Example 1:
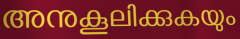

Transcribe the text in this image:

അനുകൂലിക്കുകയും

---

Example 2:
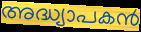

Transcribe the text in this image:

അദ്ധ്യാപകൻ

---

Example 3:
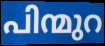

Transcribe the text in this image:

പിന്മുറ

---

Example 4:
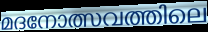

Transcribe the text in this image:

മദനോത്സവത്തിലെ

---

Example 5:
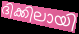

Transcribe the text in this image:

ദിക്കിലായി